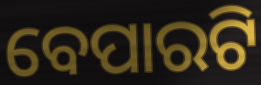
ବେପାରଟି